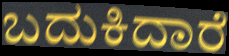
ಬದುಕಿದಾರೆ